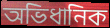
অভিধানিক